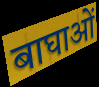
बाघाओं